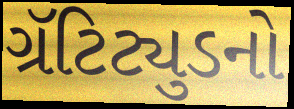
ગ્રૅટિટ્યુડનો